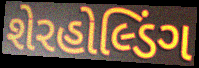
શેરહોલ્ડિંગ